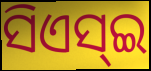
ସିଏସ୍ଇ